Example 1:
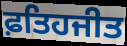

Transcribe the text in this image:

ਫ਼ਤਿਹਜੀਤ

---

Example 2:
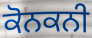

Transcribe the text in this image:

ਕੋਨਕਨੀ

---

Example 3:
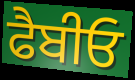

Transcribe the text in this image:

ਫੈਬੀਓ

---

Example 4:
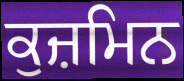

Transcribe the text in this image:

ਕੁਜ਼ਮਿਨ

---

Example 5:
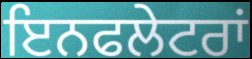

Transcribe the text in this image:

ਇਨਫਲੇਟਰਾਂ